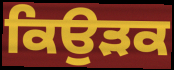
ਕਿਉੜਕ